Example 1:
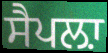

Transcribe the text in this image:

ਸੈਪਲ਼ਾ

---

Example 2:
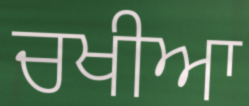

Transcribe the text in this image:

ਚਖੀਆ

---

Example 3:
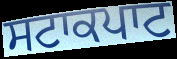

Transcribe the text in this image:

ਸਟਾਕਪਾਟ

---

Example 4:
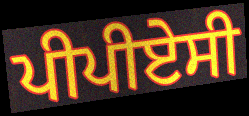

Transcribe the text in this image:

ਪੀਪੀਏਸੀ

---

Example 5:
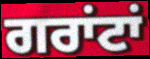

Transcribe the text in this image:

ਗਰਾਂਟਾਂ